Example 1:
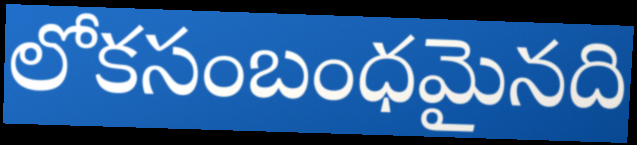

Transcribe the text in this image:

లోకసంబంధమైనది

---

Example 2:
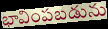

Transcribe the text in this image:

భావింపబడును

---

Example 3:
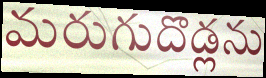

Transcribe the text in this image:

మరుగుదొడ్లను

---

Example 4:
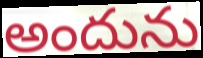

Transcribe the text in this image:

అందును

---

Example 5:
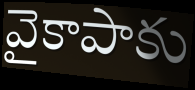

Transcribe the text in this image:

వైకాపాకు